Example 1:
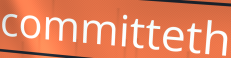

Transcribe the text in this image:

committeth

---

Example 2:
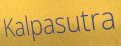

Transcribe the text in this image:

Kalpasutra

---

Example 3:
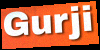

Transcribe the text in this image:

Gurji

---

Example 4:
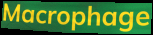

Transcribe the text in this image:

Macrophage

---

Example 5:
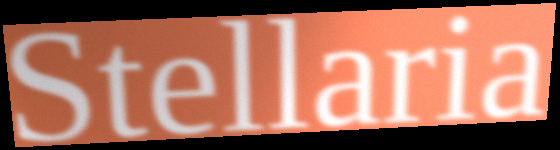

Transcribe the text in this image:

Stellaria